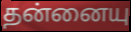
தன்னையு